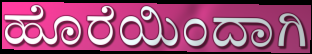
ಹೊರೆಯಿಂದಾಗಿ